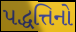
પદ્ધત્તિનો